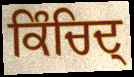
ਕਿੰਚਿਦ੍